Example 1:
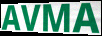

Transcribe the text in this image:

AVMA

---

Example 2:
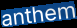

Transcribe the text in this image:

anthem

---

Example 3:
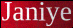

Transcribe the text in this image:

Janiye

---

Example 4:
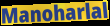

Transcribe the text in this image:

Manoharlal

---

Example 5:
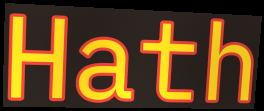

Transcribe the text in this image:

Hath